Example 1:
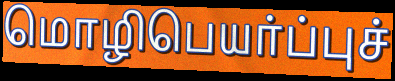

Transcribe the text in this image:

மொழிபெயர்ப்புச்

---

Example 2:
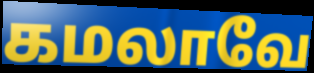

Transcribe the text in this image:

கமலாவே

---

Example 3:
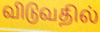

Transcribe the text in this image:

விடுவதில்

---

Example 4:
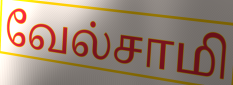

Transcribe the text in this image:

வேல்சாமி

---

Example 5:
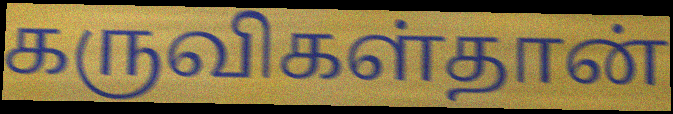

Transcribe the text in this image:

கருவிகள்தான்